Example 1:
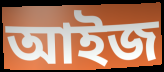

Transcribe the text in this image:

আইজ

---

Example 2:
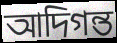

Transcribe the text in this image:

আদিগন্ত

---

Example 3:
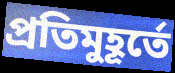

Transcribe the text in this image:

প্রতিমুহূর্তে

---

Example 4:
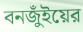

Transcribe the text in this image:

বনজুঁইয়ের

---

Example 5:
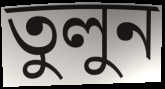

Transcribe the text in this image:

তুলুন